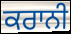
ਕਰਾਨੀ